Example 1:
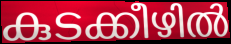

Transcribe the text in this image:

കുടക്കീഴിൽ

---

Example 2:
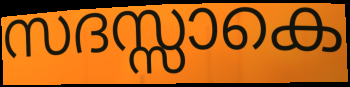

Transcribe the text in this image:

സദസ്സാകെ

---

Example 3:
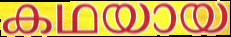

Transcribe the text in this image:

കഥയായ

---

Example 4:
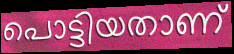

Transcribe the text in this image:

പൊട്ടിയതാണ്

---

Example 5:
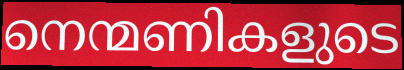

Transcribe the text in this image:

നെന്മണികളുടെ